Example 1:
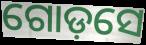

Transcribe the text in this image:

ଗୋଡ଼ସେ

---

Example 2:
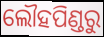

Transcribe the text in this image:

ଲୌହପିଣ୍ଡରୁ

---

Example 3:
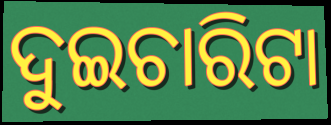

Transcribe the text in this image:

ଦୁଇଚାରିଟା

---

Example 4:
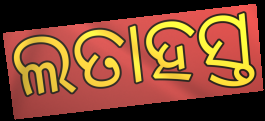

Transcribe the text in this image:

ଲତାହସ୍ତ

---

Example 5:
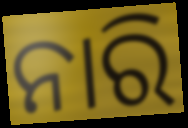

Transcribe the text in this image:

ନାରି